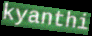
kyanthi